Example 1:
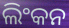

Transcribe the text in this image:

ଲିଂକନ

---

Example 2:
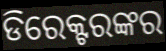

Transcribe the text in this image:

ଡିରେକ୍ଟରଙ୍କର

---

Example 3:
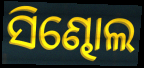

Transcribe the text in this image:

ସିଣ୍ଢୋଲ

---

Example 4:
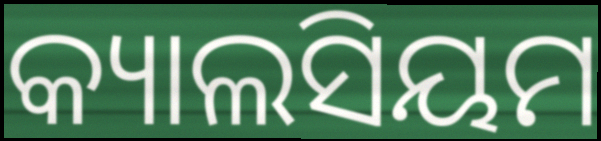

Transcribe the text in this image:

କ୍ୟାଲସିୟମ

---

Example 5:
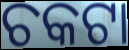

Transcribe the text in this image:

ଚକଟା